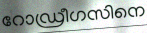
റോഡ്രീഗസിനെ